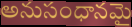
అనుసంధానమై